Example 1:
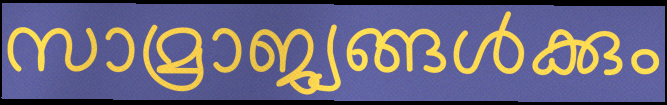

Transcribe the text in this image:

സാമ്രാജ്യങ്ങൾക്കും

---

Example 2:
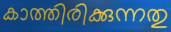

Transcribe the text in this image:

കാത്തിരിക്കുന്നതു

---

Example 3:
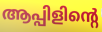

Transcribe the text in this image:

ആപ്പിളിന്റെ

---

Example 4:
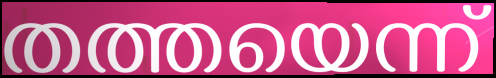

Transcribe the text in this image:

തത്തയെന്ന്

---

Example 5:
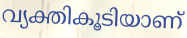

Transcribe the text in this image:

വ്യക്തികൂടിയാണ്